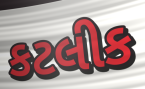
કટલીક